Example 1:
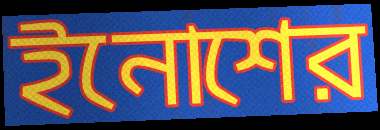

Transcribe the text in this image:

ইনোশের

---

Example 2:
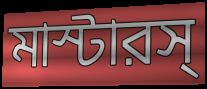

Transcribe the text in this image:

মাস্টারস্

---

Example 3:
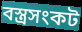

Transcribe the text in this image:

বস্ত্রসংকট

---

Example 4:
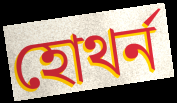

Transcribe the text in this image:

হোথর্ন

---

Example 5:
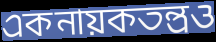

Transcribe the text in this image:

একনায়কতন্ত্রও